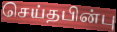
செய்தபின்பு